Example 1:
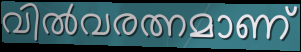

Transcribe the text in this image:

വിൽവരത്നമാണ്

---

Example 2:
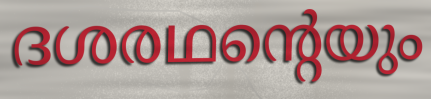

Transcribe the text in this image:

ദശരഥന്റെയും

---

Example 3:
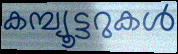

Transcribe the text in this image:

കമ്പ്യൂട്ടറുകൾ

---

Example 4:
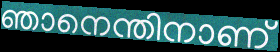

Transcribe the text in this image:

ഞാനെന്തിനാണ്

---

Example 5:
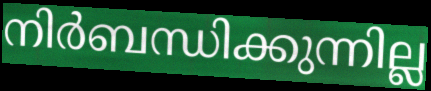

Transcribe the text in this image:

നിർബന്ധിക്കുന്നില്ല